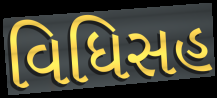
વિધિસહ